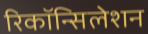
रिकॉन्सिलेशन